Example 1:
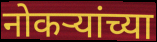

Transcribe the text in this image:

नोकऱ्यांच्या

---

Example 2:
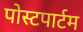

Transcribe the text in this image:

पोस्टपार्टम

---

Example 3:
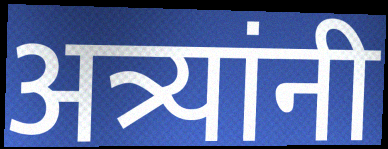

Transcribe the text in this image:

अत्र्यांनी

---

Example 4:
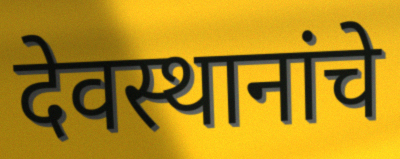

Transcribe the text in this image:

देवस्थानांचे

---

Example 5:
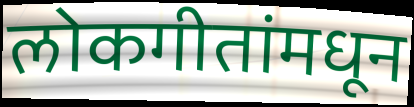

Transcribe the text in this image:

लोकगीतांमधून